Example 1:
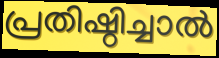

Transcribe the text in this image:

പ്രതിഷ്ഠിച്ചാൽ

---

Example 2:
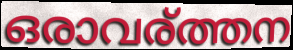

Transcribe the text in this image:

ഒരാവര്ത്തന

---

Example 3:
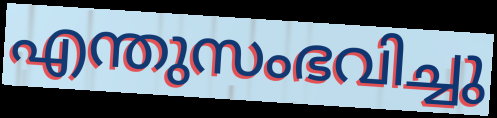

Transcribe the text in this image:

എന്തുസംഭവിച്ചു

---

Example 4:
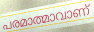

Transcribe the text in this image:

പരമാത്മാവാണ്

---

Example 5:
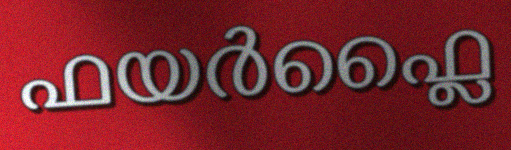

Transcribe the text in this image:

ഫയർഫ്ലൈ